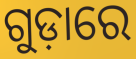
ଗୁଡ଼ାରେ